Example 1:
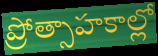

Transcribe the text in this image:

ప్రోత్సాహకాల్లో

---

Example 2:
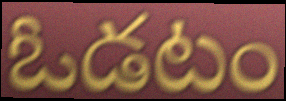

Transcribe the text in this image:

ఓడటం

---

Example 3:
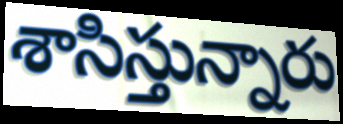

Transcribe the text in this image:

శాసిస్తున్నారు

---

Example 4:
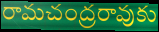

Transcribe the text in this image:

రామచంద్రరావుకు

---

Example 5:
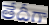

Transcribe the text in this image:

తేదీగా